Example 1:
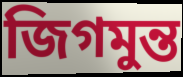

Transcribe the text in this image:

জিগমুন্ত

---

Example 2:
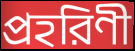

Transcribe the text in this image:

প্রহরিণী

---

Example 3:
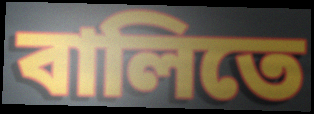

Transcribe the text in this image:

বালিতে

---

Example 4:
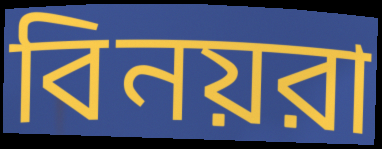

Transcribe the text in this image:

বিনয়রা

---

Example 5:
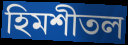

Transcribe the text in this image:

হিমশীতল